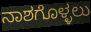
ನಾಶಗೊಳ್ಳಲು